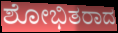
ಶೋಭಿತರಾದ